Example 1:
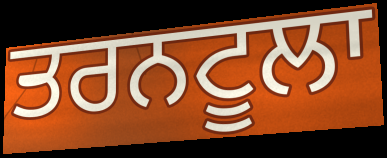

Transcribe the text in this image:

ਤਰਨਟੂਲਾ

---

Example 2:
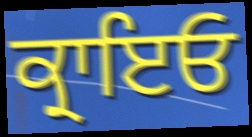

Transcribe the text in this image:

ਕ੍ਰਾਇਓ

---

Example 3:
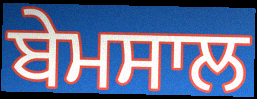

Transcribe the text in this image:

ਬੇਮਸਾਲ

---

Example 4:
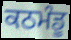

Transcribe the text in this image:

ਕਠਮੰਡੂ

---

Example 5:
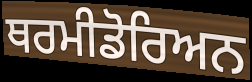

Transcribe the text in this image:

ਥਰਮੀਡੋਰਿਅਨ